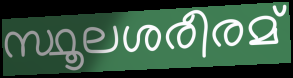
സ്ഥൂലശരീരമ്